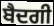
ਬੈਦਗੀ